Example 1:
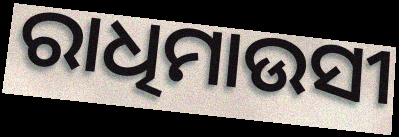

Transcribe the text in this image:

ରାଧିମାଉସୀ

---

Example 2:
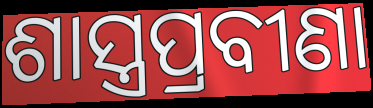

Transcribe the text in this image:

ଶାସ୍ତ୍ରପ୍ରବୀଣା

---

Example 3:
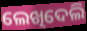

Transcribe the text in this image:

ଲେଖିଦେଲି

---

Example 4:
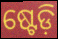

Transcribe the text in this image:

ଷ୍ଟେଡ଼ି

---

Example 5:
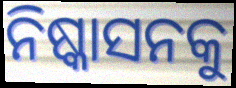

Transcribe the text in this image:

ନିଷ୍କାସନକୁ